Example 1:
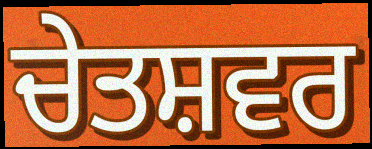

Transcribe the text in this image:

ਚੇਤਸ਼ਵਰ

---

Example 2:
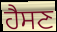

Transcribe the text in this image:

ਹੈਸਣ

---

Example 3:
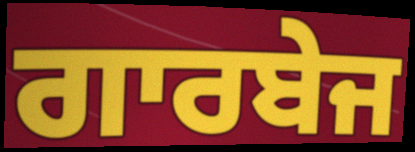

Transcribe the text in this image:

ਗਾਰਬੇਜ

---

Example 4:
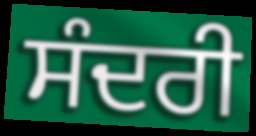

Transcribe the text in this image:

ਸੰਦਰੀ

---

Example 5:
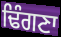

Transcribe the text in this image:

ਢਿੰਗਣਾ